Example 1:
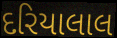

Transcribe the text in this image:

દરિયાલાલ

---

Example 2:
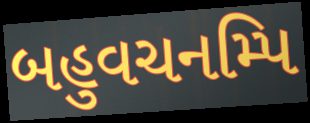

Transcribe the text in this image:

બહુવચનમ્પિ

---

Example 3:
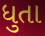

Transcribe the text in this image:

ધુતા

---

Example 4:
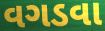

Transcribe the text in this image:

વગડવા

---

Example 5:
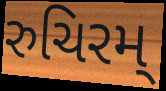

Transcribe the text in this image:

રુચિરમ્